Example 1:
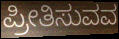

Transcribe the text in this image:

ಪ್ರೀತಿಸುವವ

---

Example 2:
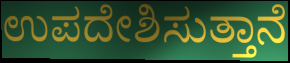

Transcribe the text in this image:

ಉಪದೇಶಿಸುತ್ತಾನೆ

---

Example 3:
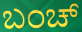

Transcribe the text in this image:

ಬಂಚ್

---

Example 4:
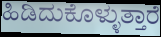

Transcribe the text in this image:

ಹಿಡಿದುಕೊಳ್ಳುತ್ತಾರೆ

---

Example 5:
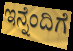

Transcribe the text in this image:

ಇನ್ನೆಂದಿಗೆ